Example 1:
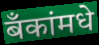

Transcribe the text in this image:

बँकांमधे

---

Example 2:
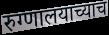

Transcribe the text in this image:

रुग्णालयाच्याच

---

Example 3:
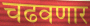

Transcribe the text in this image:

चढवणार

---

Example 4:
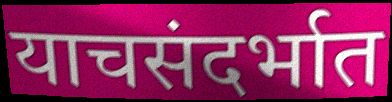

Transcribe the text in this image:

याचसंदर्भात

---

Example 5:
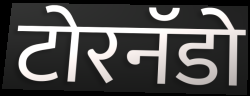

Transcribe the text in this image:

टोरनॅडो